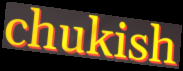
chukish